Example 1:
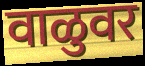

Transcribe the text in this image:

वाळुवर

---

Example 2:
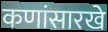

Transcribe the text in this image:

कणांसारखे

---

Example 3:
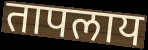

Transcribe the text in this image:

तापलाय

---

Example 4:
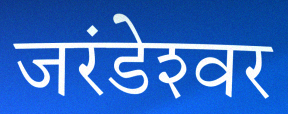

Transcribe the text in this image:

जरंडेश्वर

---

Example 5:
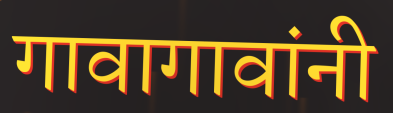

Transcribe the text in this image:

गावागावांनी